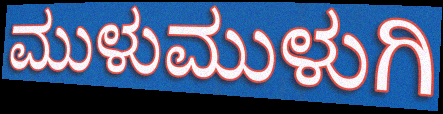
ಮುಳುಮುಳುಗಿ